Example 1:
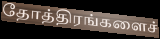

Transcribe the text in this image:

தோத்திரங்களைச்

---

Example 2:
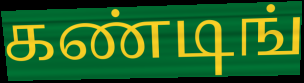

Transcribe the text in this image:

கண்டிங்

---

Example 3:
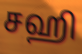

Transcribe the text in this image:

சஹி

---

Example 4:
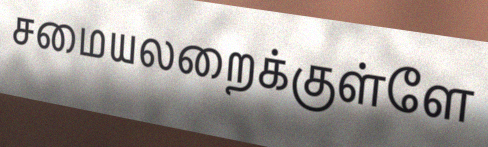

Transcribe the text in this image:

சமையலறைக்குள்ளே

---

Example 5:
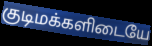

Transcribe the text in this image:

குடிமக்களிடையே